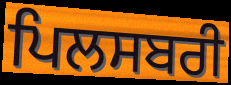
ਪਿਲਸਬਰੀ